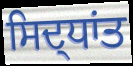
ਸਿਦ੍ਧਾਂਤ